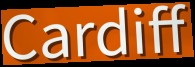
Cardiff